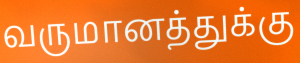
வருமானத்துக்கு